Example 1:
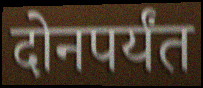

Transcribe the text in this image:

दोनपर्यंत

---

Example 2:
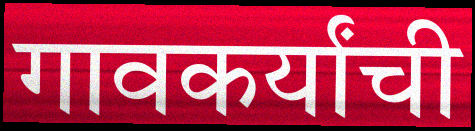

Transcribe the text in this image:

गावकर्यांची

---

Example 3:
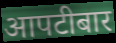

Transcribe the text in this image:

आपटीबार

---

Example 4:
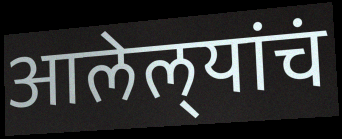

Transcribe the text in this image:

आलेल्यांचं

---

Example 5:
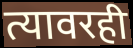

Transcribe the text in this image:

त्यावरही